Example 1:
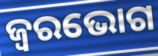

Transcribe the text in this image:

ଜ୍ୱରଭୋଗ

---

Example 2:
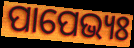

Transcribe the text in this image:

ପାପେଭ୍ୟଃ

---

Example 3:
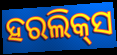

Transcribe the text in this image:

ହରଲିକ୍‌ସ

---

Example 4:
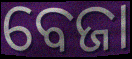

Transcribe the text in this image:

ବେଜା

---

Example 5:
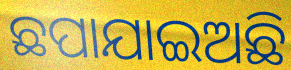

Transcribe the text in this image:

ଛପାଯାଇଅଛି